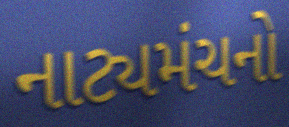
નાટ્યમંચનો